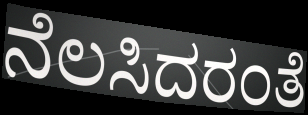
ನೆಲಸಿದರಂತೆ